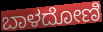
ಬಾಳದೋಣಿ